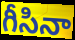
గీసినా